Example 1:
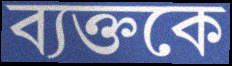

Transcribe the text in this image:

ব্যক্তকে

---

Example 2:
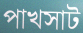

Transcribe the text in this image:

পাখসাট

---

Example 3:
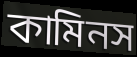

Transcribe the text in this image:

কামিনস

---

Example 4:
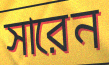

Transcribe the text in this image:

সারেন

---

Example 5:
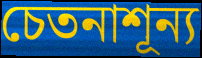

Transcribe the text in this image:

চেতনাশূন্য